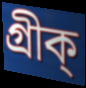
গ্ৰীক্